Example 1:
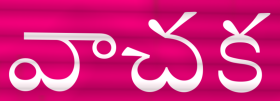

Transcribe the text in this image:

వాచక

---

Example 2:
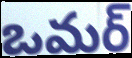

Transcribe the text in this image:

ఒమర్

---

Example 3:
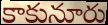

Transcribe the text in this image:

కాకునూరు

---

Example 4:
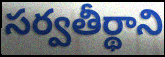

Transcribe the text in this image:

సర్వతీర్థాని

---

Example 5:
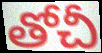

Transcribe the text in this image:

తోచీ